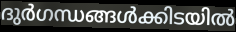
ദുർഗന്ധങ്ങൾക്കിടയിൽ